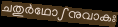
ചതുർഥോഽനുവാകഃ